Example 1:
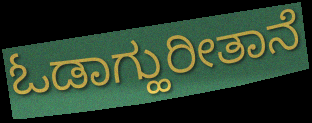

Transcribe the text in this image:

ಓಡಾಗ್ಹುರೀತಾನೆ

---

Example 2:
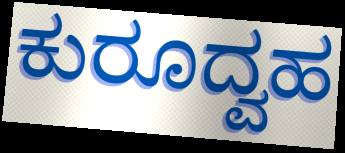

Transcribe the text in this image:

ಕುರೂದ್ವಹ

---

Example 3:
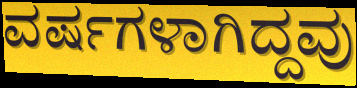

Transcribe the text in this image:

ವರ್ಷಗಳಾಗಿದ್ದವು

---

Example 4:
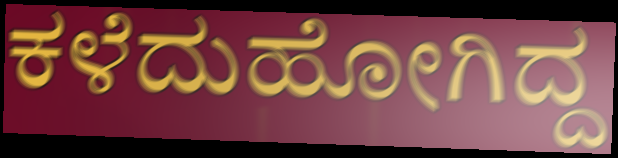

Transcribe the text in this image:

ಕಳೆದುಹೋಗಿದ್ದ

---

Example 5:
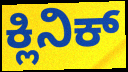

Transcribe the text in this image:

ಕ್ಲಿನಿಕ್